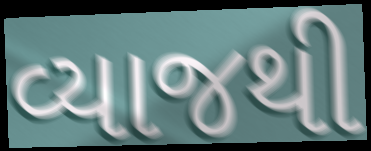
વ્યાજથી